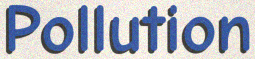
Pollution